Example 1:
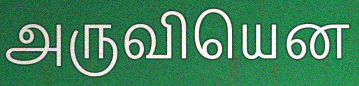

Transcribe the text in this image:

அருவியென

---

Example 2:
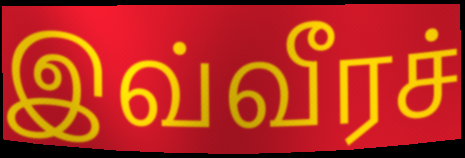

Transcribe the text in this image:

இவ்வீரச்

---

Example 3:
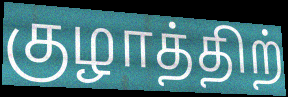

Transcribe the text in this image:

குழாத்திற்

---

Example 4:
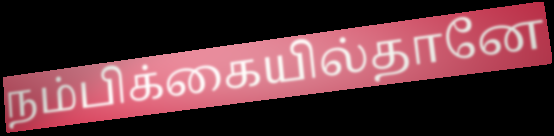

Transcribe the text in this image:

நம்பிக்கையில்தானே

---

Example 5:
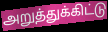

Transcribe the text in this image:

அறுத்துக்கிட்டு